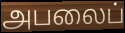
அபலைப்